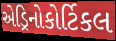
એડ્રિનોકોર્ટિકલ